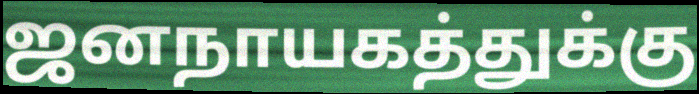
ஜனநாயகத்துக்கு